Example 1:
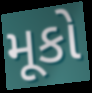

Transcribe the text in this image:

મૂકો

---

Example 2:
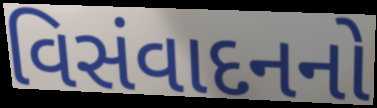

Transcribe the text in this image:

વિસંવાદનનો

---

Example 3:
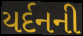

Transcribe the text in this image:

યર્દનની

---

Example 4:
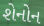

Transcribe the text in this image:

શેનોન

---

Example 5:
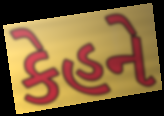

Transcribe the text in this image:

કેહને